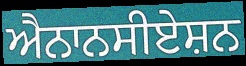
ਐਨਾਨਸੀਏਸ਼ਨ